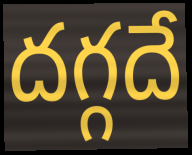
దగ్గదే